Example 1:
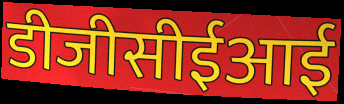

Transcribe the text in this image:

डीजीसीईआई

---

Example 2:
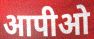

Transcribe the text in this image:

आपीओ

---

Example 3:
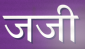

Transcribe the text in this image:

जजी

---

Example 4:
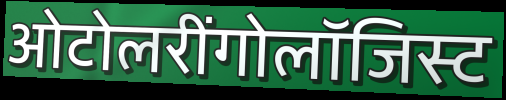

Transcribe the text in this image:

ओटोलरींगोलॉजिस्ट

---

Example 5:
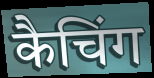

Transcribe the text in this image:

कैचिंग